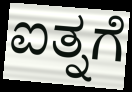
ಐತ್ನಗೆ